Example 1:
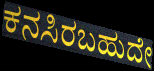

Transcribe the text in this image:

ಕನಸಿರಬಹುದೇ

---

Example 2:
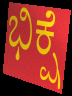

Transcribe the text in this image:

ಭಿಕ್ಷೆ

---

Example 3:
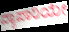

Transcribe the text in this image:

ವ್ಯಾಪಾರಿಯೇ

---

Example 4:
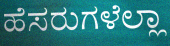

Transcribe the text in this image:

ಹೆಸರುಗಳೆಲ್ಲಾ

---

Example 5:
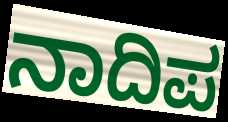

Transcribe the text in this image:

ನಾದಿಪ